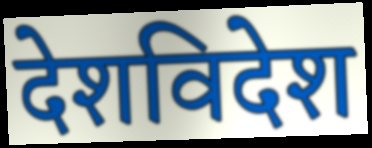
देशविदेश